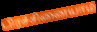
பிரச்சினையாம்